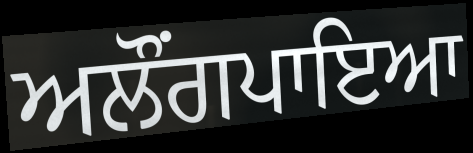
ਅਲੌਂਗਪਾਇਆ